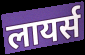
लायर्स